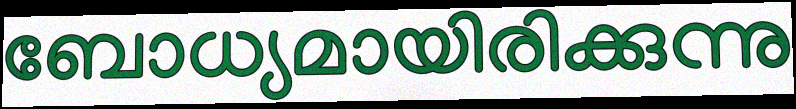
ബോധ്യമായിരിക്കുന്നു